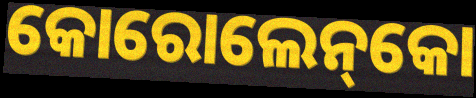
କୋରୋଲେନ୍‌କୋ